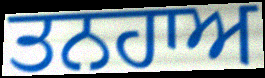
ਤਨਹਾਅ